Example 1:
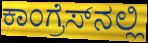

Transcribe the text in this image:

ಕಾಂಗ್ರೆಸ್‍ನಲ್ಲಿ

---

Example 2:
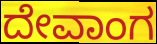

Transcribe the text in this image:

ದೇವಾಂಗ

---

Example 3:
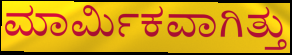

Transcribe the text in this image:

ಮಾರ್ಮಿಕವಾಗಿತ್ತು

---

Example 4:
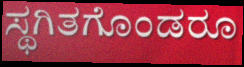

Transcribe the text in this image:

ಸ್ಥಗಿತಗೊಂಡರೂ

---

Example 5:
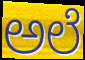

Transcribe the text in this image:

ಅಲೆ